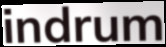
indrum